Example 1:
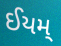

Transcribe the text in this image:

ઈયમ્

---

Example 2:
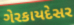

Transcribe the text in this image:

ગેરકાયદેસર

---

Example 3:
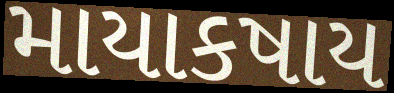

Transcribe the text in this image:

માયાકષાય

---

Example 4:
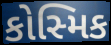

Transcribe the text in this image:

કોસ્મિક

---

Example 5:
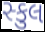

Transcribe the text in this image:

સ્કુલ